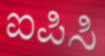
ಐಪಿಸಿ